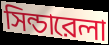
সিন্ডারেলা